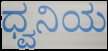
ಧ್ವನಿಯ